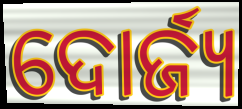
ଦୋର୍ଜ୍ୟ